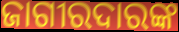
ଜାଗୀରଦାରଙ୍କ